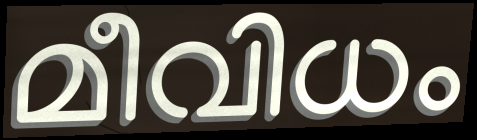
മീവിധം